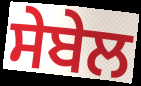
ਸੇਬੇਲ